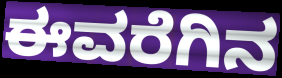
ಈವರೆಗಿನ